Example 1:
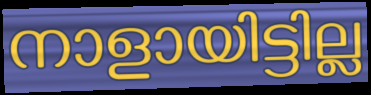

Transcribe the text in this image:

നാളായിട്ടില്ല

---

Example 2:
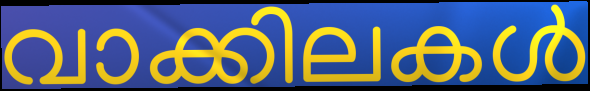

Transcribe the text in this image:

വാക്കിലകൾ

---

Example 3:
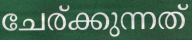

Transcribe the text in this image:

ചേര്ക്കുന്നത്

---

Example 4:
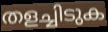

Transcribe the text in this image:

തളച്ചിടുക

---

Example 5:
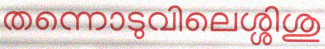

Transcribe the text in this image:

തന്നൊടുവിലെശ്ശിശു